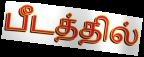
பீடத்தில்